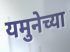
यमुनेच्या